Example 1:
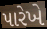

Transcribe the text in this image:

પારેખે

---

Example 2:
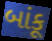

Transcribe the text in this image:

બાંકૂ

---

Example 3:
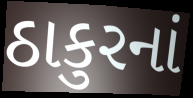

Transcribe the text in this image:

ઠાકુરનાં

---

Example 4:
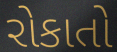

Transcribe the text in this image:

રોકાતો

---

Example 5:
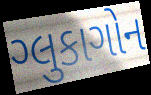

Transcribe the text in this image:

ગ્લુકાગોન